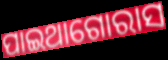
ପାଇଥାଗୋରାସ